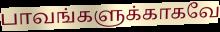
பாவங்களுக்காகவே